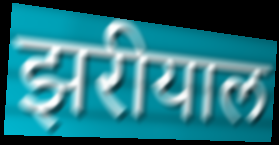
झरीयाल